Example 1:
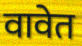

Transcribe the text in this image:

वावेत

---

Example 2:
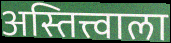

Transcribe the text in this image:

अस्तित्त्वाला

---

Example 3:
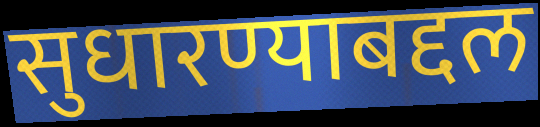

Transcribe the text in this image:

सुधारण्याबद्दल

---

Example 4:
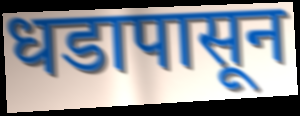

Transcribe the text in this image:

धडापासून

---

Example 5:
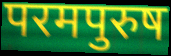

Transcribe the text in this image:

परमपुरुष